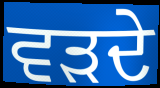
ਵੜਦੇ